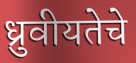
ध्रुवीयतेचे